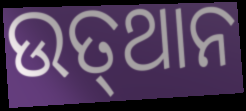
ଉତ୍‍ଥାନ